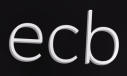
ecb